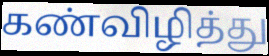
கண்விழித்து